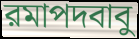
রমাপদবাবু